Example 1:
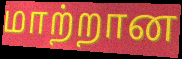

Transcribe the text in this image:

மாற்றான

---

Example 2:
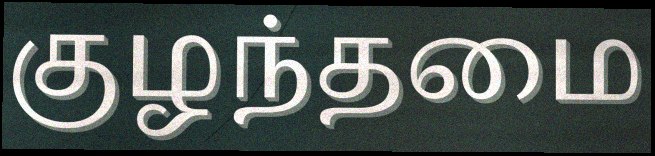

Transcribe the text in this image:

குழந்தமை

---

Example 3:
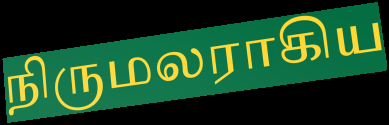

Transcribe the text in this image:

நிருமலராகிய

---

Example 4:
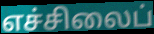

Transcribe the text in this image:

எச்சிலைப்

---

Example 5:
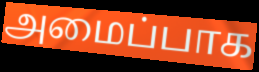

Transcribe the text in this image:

அமைப்பாக